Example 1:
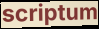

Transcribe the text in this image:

scriptum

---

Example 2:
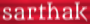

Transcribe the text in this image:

sarthak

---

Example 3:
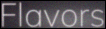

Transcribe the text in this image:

Flavors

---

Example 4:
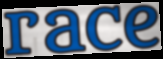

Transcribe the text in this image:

race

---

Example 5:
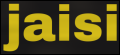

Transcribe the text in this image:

jaisi